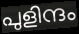
പുളിന്ദം